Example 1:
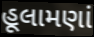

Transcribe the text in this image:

હૂલામણાં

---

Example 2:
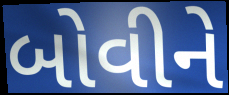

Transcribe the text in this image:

બોવીને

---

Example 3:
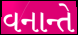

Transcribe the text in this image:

વનાન્તે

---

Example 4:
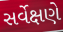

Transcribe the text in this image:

સર્વેક્ષણે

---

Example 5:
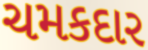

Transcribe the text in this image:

ચમકદાર